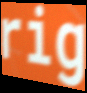
rig